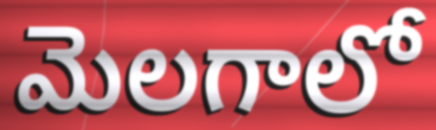
మెలగాలో